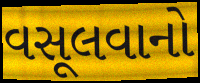
વસૂલવાનો